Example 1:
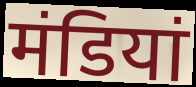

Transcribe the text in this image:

मंडियां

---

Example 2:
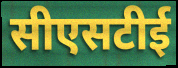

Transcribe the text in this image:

सीएसटीई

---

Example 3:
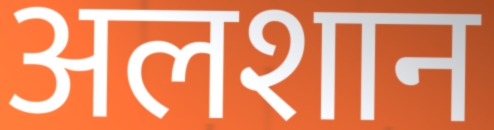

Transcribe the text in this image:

अलशान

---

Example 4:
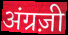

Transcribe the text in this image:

अंग्रज़ी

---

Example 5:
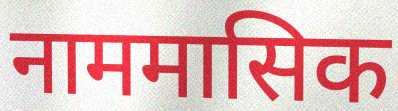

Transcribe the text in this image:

नाममासिक